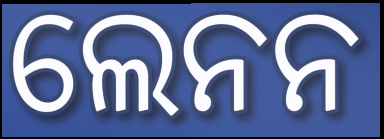
ଲେନନ